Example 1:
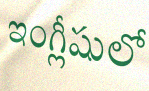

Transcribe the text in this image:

ఇంగ్లీషులో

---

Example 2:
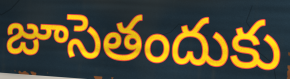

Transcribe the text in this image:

జూసెతందుకు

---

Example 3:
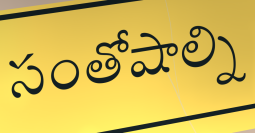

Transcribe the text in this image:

సంతోషాల్ని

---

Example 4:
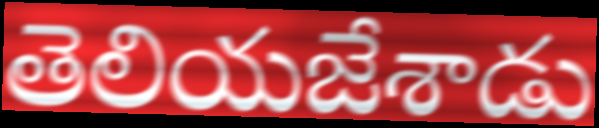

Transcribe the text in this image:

తెలియజేశాడు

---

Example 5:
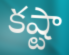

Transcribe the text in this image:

కష్టా